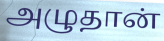
அழுதான்